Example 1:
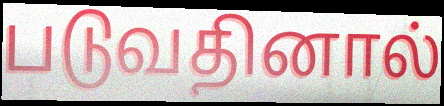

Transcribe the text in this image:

படுவதினால்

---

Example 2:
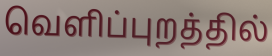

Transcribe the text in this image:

வெளிப்புறத்தில்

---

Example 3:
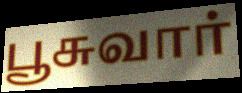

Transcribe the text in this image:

பூசுவார்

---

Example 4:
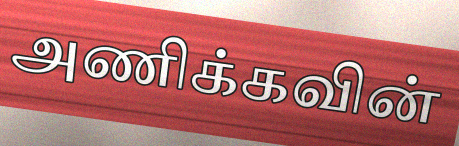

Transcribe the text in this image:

அணிக்கவின்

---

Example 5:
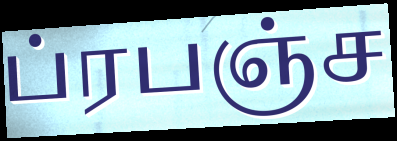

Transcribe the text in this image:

ப்ரபஞ்ச